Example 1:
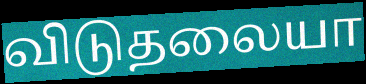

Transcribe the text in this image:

விடுதலையா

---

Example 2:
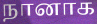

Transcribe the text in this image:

நானாக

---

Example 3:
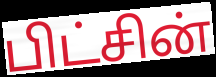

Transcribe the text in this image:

பிட்சின்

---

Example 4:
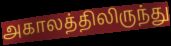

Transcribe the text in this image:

அகாலத்திலிருந்து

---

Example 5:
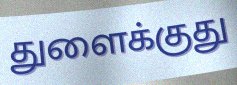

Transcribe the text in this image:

துளைக்குது